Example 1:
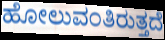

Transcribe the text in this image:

ಹೋಲುವಂತಿರುತ್ತದೆ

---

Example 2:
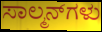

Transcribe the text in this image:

ಸಾಲ್ಮನ್‌ಗಳು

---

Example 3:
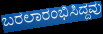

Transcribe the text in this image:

ಬರಲಾರಂಭಿಸಿದ್ದವು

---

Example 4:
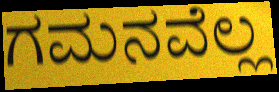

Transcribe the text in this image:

ಗಮನವೆಲ್ಲ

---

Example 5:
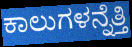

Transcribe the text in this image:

ಕಾಲುಗಳನ್ನೆತ್ತಿ